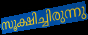
സൂക്ഷിച്ചിരുന്നു